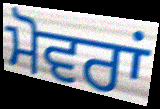
ਮੋਵਰਾਂ